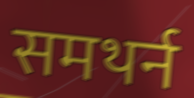
समथर्न